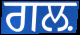
ਗਲ਼